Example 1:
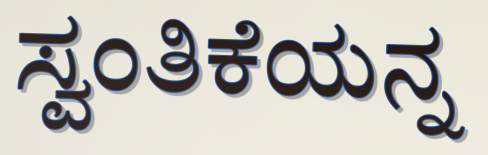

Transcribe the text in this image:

ಸ್ವಂತಿಕೆಯನ್ನ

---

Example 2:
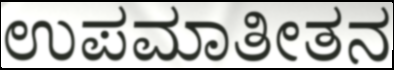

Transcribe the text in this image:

ಉಪಮಾತೀತನ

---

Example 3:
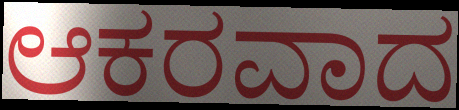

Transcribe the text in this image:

ಆಕರವಾದ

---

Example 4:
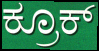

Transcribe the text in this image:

ಕ್ರೂಕ್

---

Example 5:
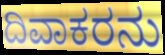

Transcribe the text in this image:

ದಿವಾಕರನು